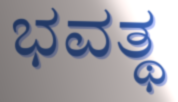
ಭವತ್ಥ